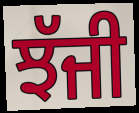
ਝੱਜੀ